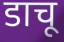
डाचू